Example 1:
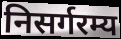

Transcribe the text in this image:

निसर्गरम्य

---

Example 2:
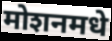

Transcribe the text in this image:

मोशनमधे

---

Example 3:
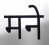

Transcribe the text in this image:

मने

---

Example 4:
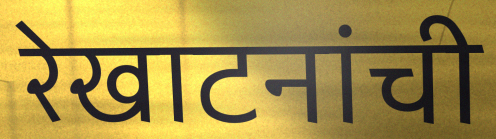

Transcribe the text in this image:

रेखाटनांची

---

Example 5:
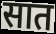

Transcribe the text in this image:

सात